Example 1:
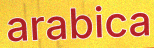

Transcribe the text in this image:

arabica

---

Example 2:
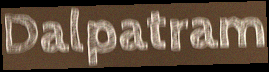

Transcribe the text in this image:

Dalpatram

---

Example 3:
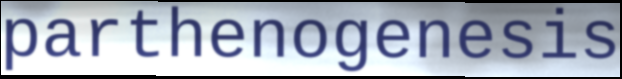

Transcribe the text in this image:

parthenogenesis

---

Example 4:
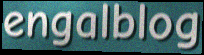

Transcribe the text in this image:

engalblog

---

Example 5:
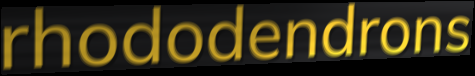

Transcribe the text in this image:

rhododendrons